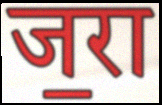
ज॒रा